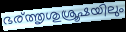
ഭര്ത്തൃശുശ്രൂഷയിലും